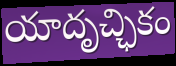
యాదృచ్ఛికం